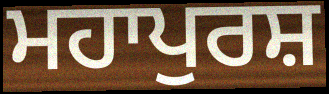
ਮਹਾਪੁਰਸ਼